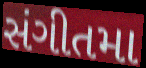
સંગીતમા